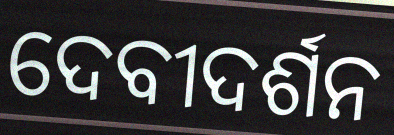
ଦେବୀଦର୍ଶନ